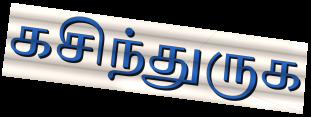
கசிந்துருக